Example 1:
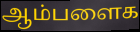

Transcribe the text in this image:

ஆம்பளைக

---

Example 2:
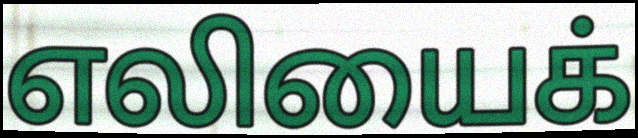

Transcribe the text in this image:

எலியைக்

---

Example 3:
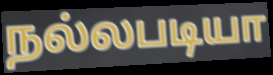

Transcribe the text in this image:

நல்லபடியா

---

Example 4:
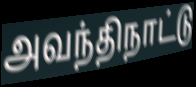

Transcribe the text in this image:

அவந்திநாட்டு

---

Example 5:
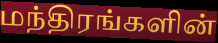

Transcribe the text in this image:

மந்திரங்களின்